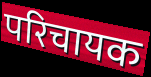
परिचायक